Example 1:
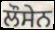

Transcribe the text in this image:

ਲੌਸੇਨ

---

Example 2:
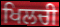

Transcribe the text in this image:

ਖਿਲਚੀ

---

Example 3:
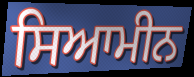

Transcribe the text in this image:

ਸਿਆਮੀਨ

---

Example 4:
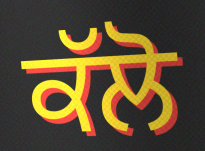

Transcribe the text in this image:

ਕੱਲੋ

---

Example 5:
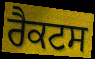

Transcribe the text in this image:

ਰੈਕਟਸ